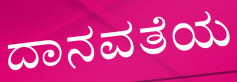
ದಾನವತೆಯ